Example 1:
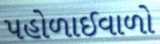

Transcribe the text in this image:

પહોળાઈવાળો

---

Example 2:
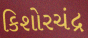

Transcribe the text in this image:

કિશોરચંદ્ર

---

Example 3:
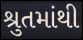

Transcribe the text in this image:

શ્રુતમાંથી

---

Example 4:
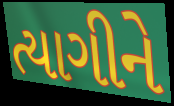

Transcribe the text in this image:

ત્યાગીને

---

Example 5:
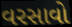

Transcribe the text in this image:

વરસાવો